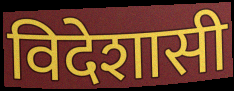
विदेशासी